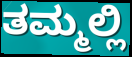
ತಮ್ಮಲ್ಲಿ